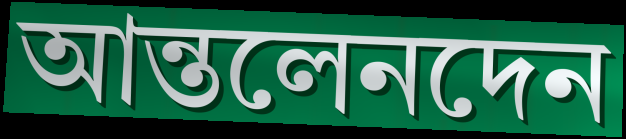
আন্তলেনদেন